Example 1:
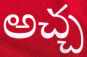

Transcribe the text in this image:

అచ్చ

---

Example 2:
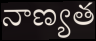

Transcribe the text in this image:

నాణ్యత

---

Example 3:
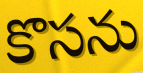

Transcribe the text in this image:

కొసను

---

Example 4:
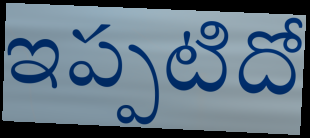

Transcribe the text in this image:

ఇప్పటిదో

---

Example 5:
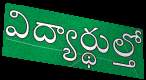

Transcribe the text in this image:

విద్యార్థుల్తో